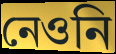
নেওনি